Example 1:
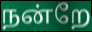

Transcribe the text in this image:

நன்றே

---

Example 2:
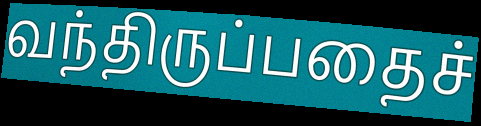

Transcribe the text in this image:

வந்திருப்பதைச்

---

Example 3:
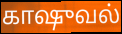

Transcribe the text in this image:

காஷுவல்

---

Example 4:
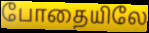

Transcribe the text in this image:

போதையிலே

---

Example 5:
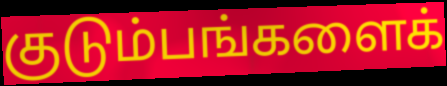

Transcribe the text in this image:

குடும்பங்களைக்